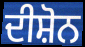
ਦੀਸ਼ੋਨ